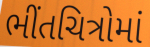
ભીંતચિત્રોમાં